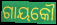
ଗାୟକୌ